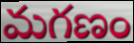
మగణం